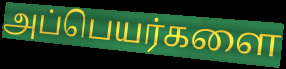
அப்பெயர்களை